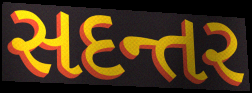
સદન્તર